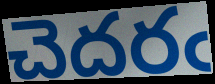
చెదరఁ